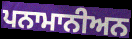
ਪਨਾਮਾਨੀਅਨ